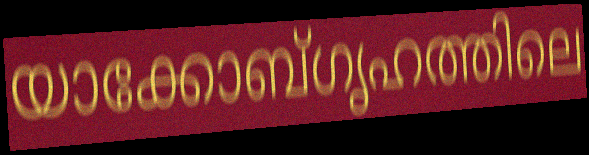
യാക്കോബ്ഗൃഹത്തിലെ